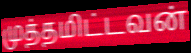
முத்தமிட்டவன்